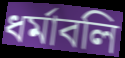
ধর্মাবলি